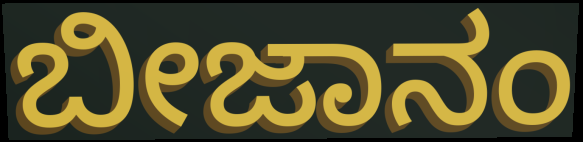
ಬೀಜಾನಂ